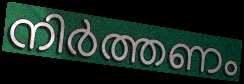
നിർത്തണം